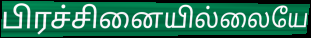
பிரச்சினையில்லையே